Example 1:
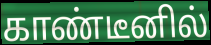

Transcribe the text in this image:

காண்டீனில்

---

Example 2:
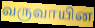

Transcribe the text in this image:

வருவாயின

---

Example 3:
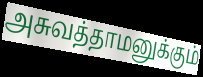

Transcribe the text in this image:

அசுவத்தாமனுக்கும்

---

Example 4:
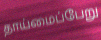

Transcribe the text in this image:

தாய்மைப்பேறு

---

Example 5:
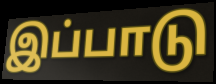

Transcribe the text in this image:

இப்பாடு